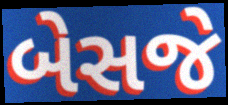
બેસજે